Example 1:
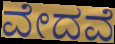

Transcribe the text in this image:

ವೇದವೆ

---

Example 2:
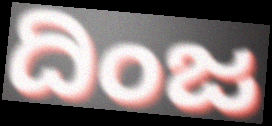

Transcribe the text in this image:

ದಿಂಜ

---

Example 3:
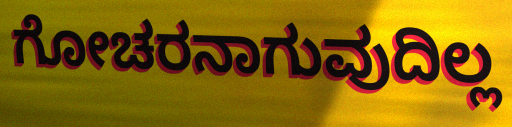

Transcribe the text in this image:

ಗೋಚರನಾಗುವುದಿಲ್ಲ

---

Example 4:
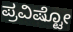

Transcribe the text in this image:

ಪ್ರವಿಷ್ಟೋ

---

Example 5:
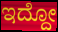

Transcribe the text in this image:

ಇದ್ದೋ